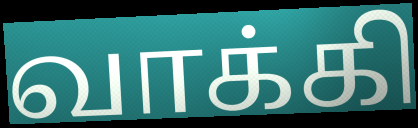
வாக்கி